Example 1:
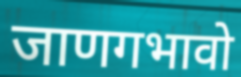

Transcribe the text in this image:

जाणगभावो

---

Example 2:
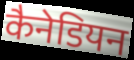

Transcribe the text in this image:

कैनेडियन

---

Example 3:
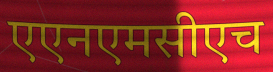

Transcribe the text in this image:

एएनएमसीएच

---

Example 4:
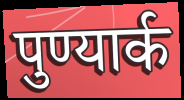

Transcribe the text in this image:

पुण्यार्क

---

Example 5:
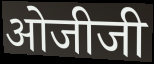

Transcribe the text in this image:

ओजीजी